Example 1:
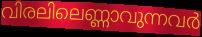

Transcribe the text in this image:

വിരലിലെണ്ണാവുന്നവർ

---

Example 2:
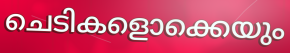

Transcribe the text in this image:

ചെടികളൊക്കെയും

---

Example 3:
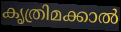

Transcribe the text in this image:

കൃത്രിമക്കാൽ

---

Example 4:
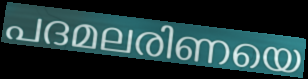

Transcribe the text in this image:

പദമലരിണയെ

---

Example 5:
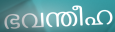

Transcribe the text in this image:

ഭവന്തീഹ